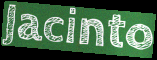
Jacinto